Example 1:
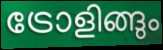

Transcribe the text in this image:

ട്രോളിങ്ങും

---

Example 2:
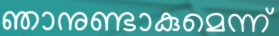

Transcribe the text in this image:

ഞാനുണ്ടാകുമെന്ന്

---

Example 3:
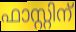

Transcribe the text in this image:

ഫാസ്റ്റിന്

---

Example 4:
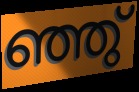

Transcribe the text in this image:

ഞ്ഞു്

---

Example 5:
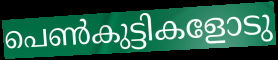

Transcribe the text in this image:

പെൺകുട്ടികളോടു